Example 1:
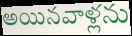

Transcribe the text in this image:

అయినవాళ్లను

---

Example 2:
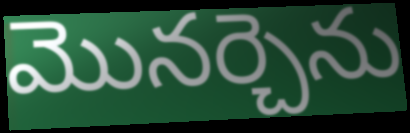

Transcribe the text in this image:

మొనర్చెను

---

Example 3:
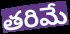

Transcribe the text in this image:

తరిమే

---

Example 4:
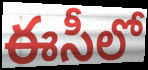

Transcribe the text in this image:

ఈసీలో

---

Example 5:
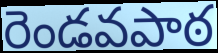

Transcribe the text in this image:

రెండవపాఠ